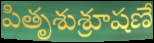
పితృశుశ్రూషణే